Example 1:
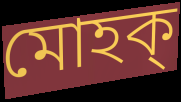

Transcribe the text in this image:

মোহক্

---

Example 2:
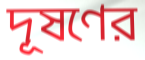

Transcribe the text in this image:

দূষণের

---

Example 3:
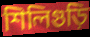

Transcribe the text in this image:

শিলিগুড়ি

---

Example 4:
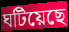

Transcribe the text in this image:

ঘটিয়েছে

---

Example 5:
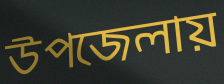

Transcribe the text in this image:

উপজেলায়